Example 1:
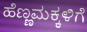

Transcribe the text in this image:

ಹೆಣ್ಣಮಕ್ಕಳಿಗೆ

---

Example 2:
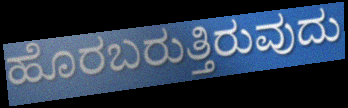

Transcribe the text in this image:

ಹೊರಬರುತ್ತಿರುವುದು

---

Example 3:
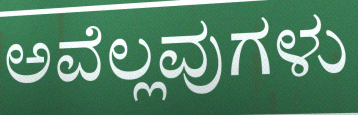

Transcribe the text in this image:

ಅವೆಲ್ಲವುಗಳು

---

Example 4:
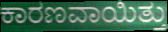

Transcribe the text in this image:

ಕಾರಣವಾಯಿತ್ತು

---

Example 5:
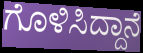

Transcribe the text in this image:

ಗೊಳಿಸಿದ್ದಾನೆ